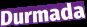
Durmada